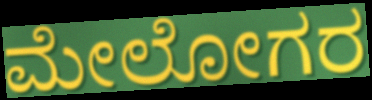
ಮೇಲೋಗರ